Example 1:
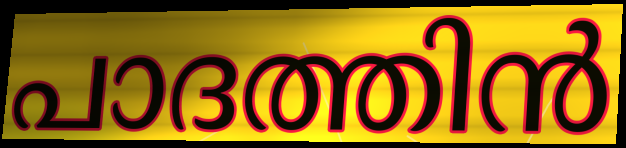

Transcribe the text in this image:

പാദത്തിൻ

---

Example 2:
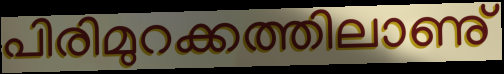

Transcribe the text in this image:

പിരിമുറക്കത്തിലാണു്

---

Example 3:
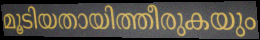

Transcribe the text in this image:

മൂടിയതായിത്തീരുകയും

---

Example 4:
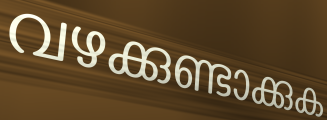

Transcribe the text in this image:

വഴക്കുണ്ടാക്കുക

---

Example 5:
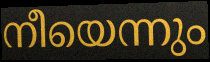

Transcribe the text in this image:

നീയെന്നും